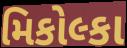
મિકોલ્કા